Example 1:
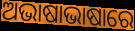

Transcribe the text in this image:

ଅଭାଷାଭାଷାରେ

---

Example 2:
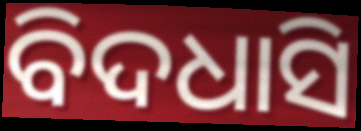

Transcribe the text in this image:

ବିଦଧାସି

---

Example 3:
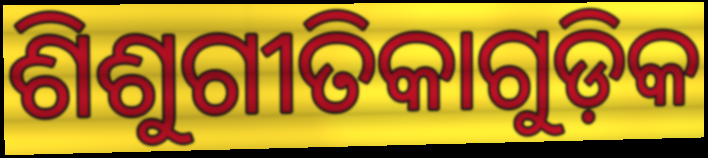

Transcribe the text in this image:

ଶିଶୁଗୀତିକାଗୁଡ଼ିକ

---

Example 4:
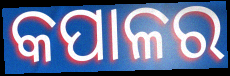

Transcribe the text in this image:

କପାଳର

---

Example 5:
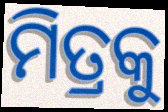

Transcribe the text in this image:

ମିତ୍ରକୁ